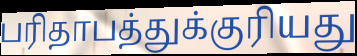
பரிதாபத்துக்குரியது